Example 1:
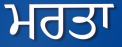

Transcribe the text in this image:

ਮਰਤਾ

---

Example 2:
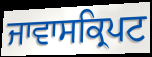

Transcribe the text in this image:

ਜਾਵਾਸਕ੍ਰਿਪਟ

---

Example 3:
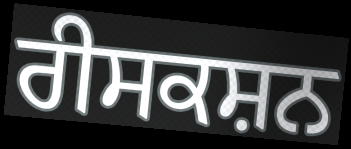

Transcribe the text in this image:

ਰੀਸਕਸ਼ਨ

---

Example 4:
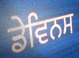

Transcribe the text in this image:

ਡੇਵਿਨਸ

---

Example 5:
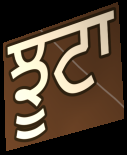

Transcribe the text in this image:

ਝੂਟਾ